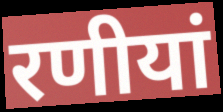
रणीयां